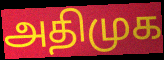
அதிமுக